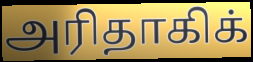
அரிதாகிக்